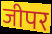
जीपर